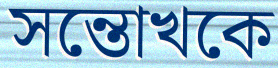
সন্তোখকে